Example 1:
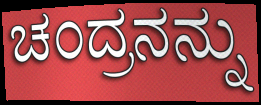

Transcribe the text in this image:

ಚಂದ್ರನನ್ನು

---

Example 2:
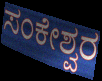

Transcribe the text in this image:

ಸಂಕೇಶ್ವರ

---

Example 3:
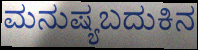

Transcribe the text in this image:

ಮನುಷ್ಯಬದುಕಿನ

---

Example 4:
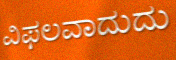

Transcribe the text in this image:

ವಿಫಲವಾದುದು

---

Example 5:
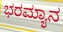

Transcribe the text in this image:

ಭರಮ್ಯಾನ